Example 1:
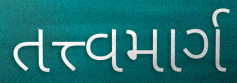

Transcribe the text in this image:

તત્ત્વમાર્ગ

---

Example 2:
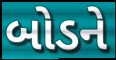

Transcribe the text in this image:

બોડને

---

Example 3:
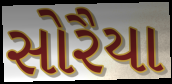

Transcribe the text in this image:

સોરૈયા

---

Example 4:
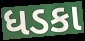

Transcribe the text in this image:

ધડકા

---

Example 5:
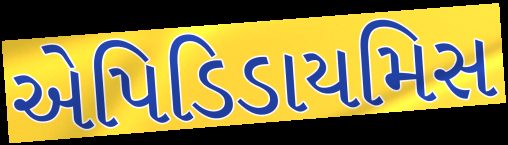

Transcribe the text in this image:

એપિડિડાયમિસ